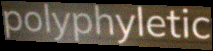
polyphyletic